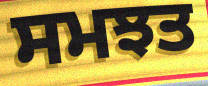
ਸਮਝਤ